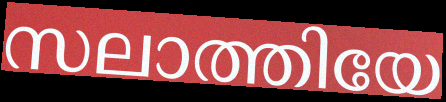
സലാത്തിയേ